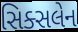
સિક્સલેન